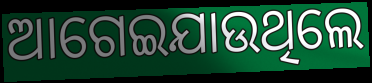
ଆଗେଇଯାଉଥିଲେ